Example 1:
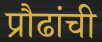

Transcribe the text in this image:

प्रौढांची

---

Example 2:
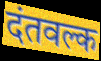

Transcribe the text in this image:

दंतवल्क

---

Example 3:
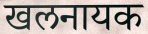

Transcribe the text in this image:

खलनायक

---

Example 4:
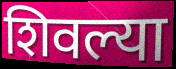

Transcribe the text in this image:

शिवल्या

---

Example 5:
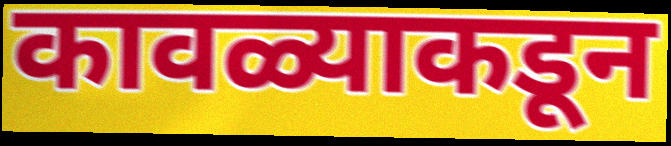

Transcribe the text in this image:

कावळ्याकडून